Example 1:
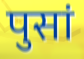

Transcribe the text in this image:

पुसां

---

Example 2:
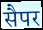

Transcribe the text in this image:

सैपर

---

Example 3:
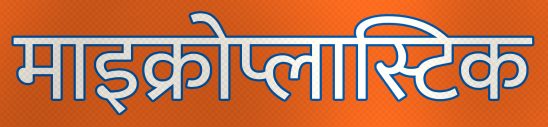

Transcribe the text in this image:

माइक्रोप्लास्टिक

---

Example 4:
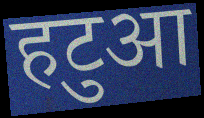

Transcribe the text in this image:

हटुआ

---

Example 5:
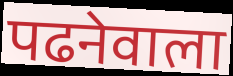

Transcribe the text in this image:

पढनेवाला